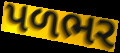
પળભર